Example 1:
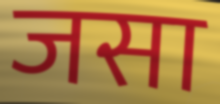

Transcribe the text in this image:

जसा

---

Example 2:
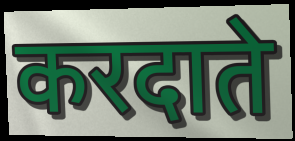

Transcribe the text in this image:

करदाते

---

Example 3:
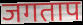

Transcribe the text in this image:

जगताप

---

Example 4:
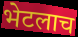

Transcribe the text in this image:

भेटलाच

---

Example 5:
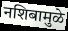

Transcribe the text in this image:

नशिबामुळे